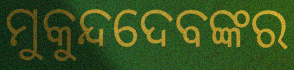
ମୁକୁନ୍ଦଦେବଙ୍କର